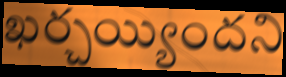
ఖర్చయ్యిందని